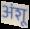
अंशू